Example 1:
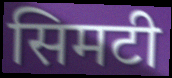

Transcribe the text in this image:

सिमटी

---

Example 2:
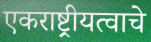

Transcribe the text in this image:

एकराष्ट्रीयत्वाचे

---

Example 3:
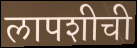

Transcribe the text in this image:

लापशीची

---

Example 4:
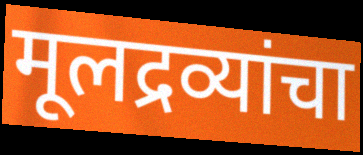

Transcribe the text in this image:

मूलद्रव्यांचा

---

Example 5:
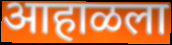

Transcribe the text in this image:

आहाळला